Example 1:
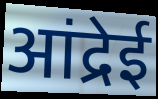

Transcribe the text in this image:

आंद्रेई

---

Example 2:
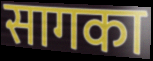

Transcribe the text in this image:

सागका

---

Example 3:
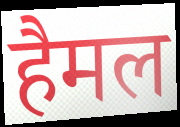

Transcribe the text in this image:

हैमल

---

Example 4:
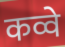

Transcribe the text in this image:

कव्वे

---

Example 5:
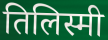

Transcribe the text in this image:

तिलिस्मी